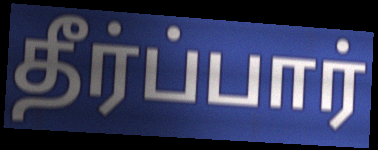
தீர்ப்பார்